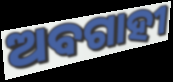
ଅବଗାହୀ